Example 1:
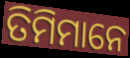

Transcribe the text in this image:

ତିମିମାନେ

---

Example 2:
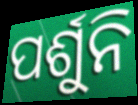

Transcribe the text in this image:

ପର୍ଶୁନି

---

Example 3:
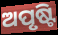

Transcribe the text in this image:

ଅପୃଷ୍ଟି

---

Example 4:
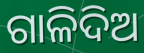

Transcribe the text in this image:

ଗାଳିଦିଅ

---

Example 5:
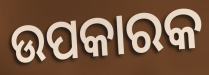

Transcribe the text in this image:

ଉପକାରକ